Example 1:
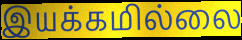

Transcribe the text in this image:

இயக்கமில்லை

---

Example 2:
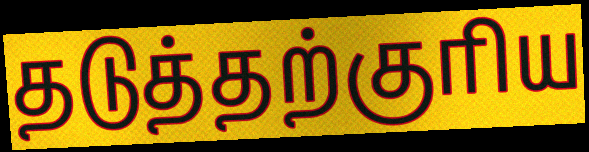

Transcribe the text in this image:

தடுத்தற்குரிய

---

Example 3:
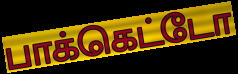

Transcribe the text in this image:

பாக்கெட்டோ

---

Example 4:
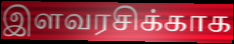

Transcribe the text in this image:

இளவரசிக்காக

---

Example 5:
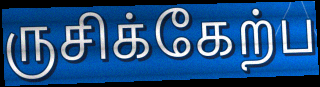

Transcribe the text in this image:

ருசிக்கேற்ப